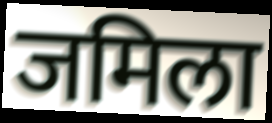
जमिला